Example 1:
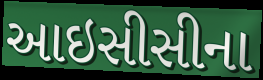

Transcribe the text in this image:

આઇસીસીના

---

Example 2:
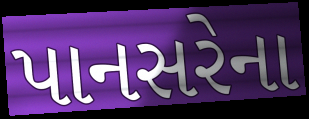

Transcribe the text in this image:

પાનસરેના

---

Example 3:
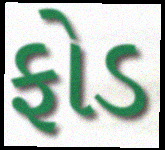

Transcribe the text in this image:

ફોડ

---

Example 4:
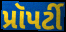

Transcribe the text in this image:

પ્રૉપર્ટી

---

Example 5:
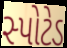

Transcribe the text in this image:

સ્પોટેડ